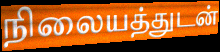
நிலையத்துடன்